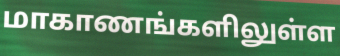
மாகாணங்களிலுள்ள